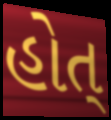
હોત્